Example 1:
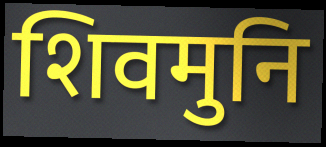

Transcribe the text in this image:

शिवमुनि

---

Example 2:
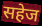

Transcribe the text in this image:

सहेज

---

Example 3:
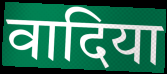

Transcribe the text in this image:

वादिया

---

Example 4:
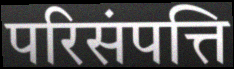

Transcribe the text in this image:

परिसंपत्ति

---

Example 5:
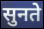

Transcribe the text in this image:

सुनते